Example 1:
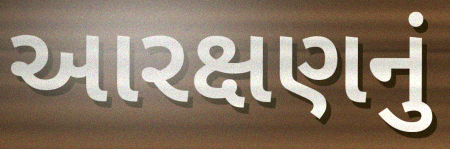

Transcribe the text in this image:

આરક્ષણનું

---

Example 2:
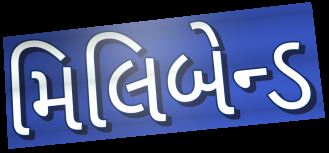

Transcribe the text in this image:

મિલિબેન્ડ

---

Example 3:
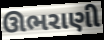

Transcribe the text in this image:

ઊભરાણી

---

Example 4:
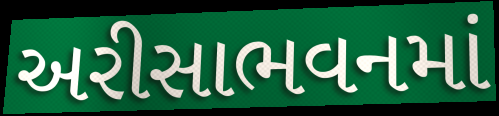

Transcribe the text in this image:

અરીસાભવનમાં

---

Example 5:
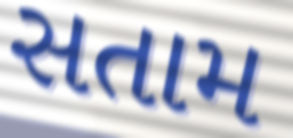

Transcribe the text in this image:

સતામ